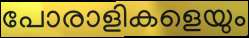
പോരാളികളെയും